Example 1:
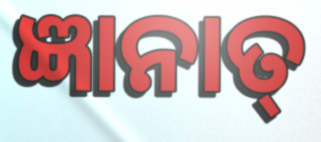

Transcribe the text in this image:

ଜ୍ଞାନାତ୍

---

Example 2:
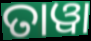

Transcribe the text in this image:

ତାୱା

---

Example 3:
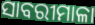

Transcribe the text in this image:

ସାବରୀମାଳା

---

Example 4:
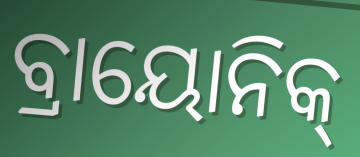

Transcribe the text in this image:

ବ୍ରାୟୋନିକ୍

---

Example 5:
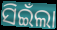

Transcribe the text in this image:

ସିଇଁଲା